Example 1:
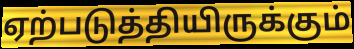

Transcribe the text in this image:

ஏற்படுத்தியிருக்கும்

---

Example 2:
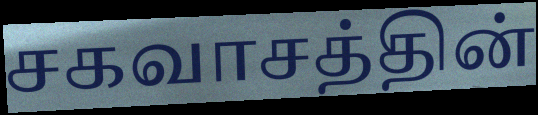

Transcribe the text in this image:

சகவாசத்தின்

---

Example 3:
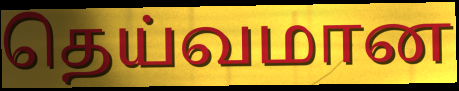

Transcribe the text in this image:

தெய்வமான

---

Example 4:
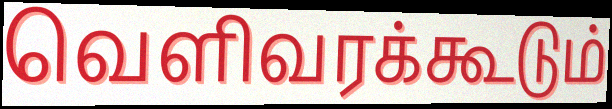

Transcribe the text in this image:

வெளிவரக்கூடும்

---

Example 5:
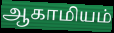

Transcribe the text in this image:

ஆகாமியம்